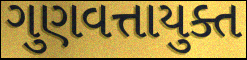
ગુણવત્તાયુક્ત